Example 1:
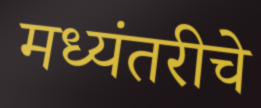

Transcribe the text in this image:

मध्यंतरीचे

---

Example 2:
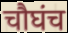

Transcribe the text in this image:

चौघंच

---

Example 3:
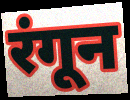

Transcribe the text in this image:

रंगून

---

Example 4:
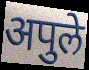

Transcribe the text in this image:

अपुले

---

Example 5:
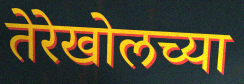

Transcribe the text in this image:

तेरेखोलच्या